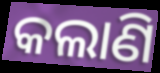
କଲାଣି